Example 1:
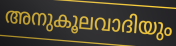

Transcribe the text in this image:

അനുകൂലവാദിയും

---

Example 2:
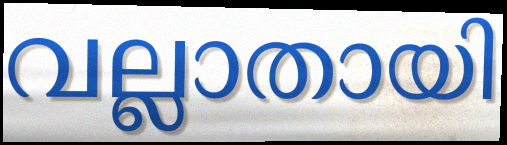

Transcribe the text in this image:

വല്ലാതായി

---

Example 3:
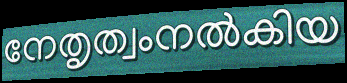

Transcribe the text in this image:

നേതൃത്വംനൽകിയ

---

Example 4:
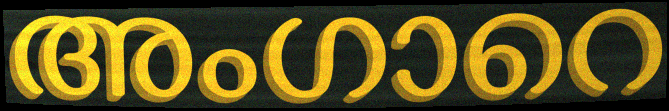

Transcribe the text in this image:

അംഗാറെ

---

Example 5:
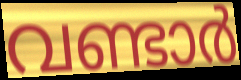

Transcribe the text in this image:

വണ്ടാർ